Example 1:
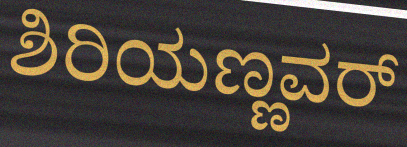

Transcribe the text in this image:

ಶಿರಿಯಣ್ಣವರ್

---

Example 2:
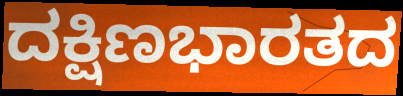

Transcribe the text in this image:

ದಕ್ಷಿಣಭಾರತದ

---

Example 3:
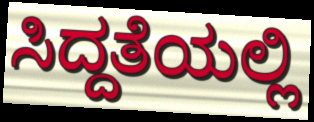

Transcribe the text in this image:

ಸಿದ್ದತೆಯಲ್ಲಿ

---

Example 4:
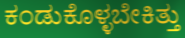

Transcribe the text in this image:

ಕಂಡುಕೊಳ್ಳಬೇಕಿತ್ತು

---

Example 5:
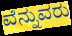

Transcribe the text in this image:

ವೆನ್ನುವರು